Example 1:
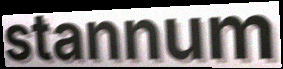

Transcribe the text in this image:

stannum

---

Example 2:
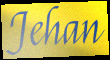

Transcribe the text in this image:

Jehan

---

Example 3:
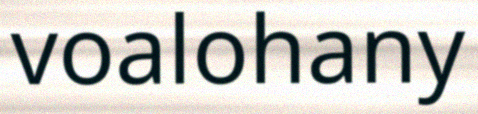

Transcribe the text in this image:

voalohany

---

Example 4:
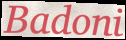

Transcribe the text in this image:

Badoni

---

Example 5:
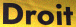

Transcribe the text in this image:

Droit